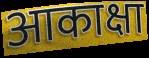
आकाक्षा